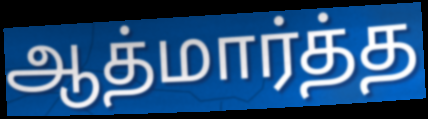
ஆத்மார்த்த